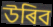
উৰিব